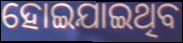
ହୋଇଯାଇଥିବ